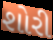
શોરી